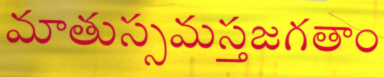
మాతుస్సమస్తజగతాం